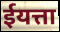
ईयत्ता